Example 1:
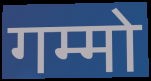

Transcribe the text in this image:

गम्मो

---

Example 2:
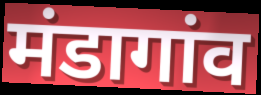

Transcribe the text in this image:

मंडागांव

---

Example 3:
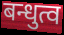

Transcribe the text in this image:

बन्धुत्व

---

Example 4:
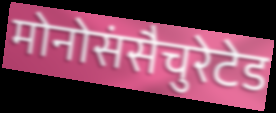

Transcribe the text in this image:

मोनोसंसैचुरेटेड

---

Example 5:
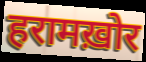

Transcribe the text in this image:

हरामख़ोर